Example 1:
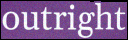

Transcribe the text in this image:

outright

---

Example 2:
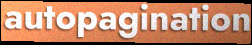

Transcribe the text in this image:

autopagination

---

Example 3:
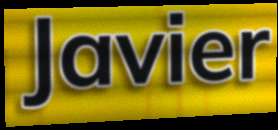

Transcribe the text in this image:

Javier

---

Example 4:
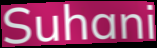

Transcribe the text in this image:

Suhani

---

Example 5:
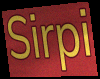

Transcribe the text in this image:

Sirpi